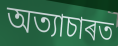
অত্যাচাৰত